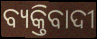
ବ୍ୟକ୍ତିବାଦୀ